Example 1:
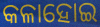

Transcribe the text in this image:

କଳାହୋଇ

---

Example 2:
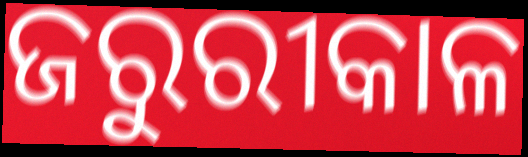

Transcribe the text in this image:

ଜରୁରୀକାଳ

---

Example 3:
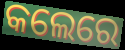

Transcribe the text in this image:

କଲେରେ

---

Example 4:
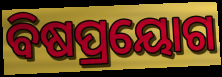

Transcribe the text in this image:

ବିଷପ୍ରୟୋଗ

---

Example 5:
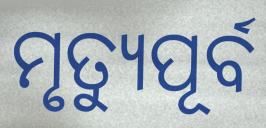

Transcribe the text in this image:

ମୃତ୍ୟୁପୂର୍ବ